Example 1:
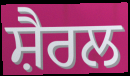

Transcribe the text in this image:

ਸ਼ੈਰਲ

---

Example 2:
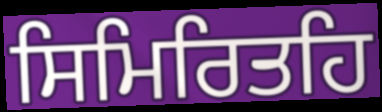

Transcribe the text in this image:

ਸਿਮਿਰਿਤਹਿ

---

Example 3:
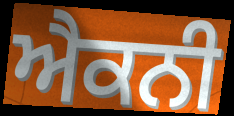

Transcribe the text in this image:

ਐਕਨੀ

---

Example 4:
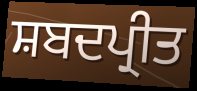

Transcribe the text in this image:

ਸ਼ਬਦਪ੍ਰੀਤ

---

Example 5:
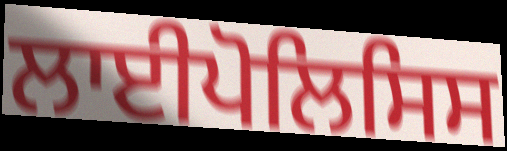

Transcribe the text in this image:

ਲਾਈਪੋਲਿਸਿਸ